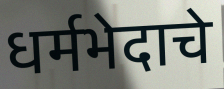
धर्मभेदाचे